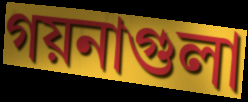
গয়নাগুলা